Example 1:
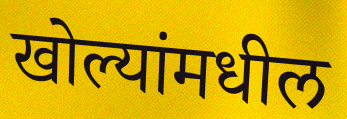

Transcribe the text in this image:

खोल्यांमधील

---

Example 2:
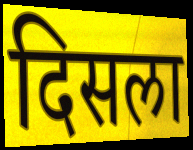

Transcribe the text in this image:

दिसला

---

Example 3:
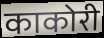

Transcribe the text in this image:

काकोरी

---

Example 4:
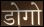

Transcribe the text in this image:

डोगो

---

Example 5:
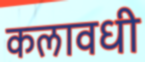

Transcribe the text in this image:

कलावधी